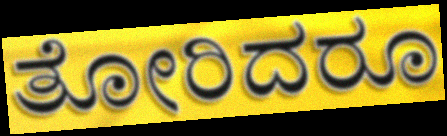
ತೋರಿದರೂ